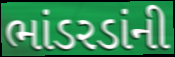
ભાંડરડાંની